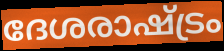
ദേശരാഷ്ട്രം